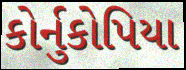
કોર્નુકોપિયા